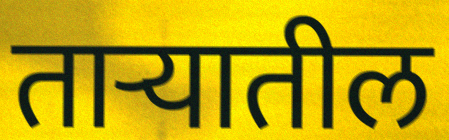
ताऱ्यातील